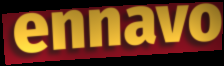
ennavo